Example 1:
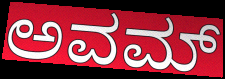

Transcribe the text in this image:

ಅವಮ್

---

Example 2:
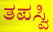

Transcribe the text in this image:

ತಪಸ್ವಿ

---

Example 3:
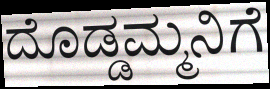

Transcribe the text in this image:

ದೊಡ್ಡಮ್ಮನಿಗೆ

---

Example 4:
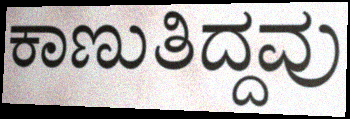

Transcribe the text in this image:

ಕಾಣುತಿದ್ದವು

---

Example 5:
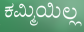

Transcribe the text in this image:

ಕಮ್ಮಿಯಿಲ್ಲ